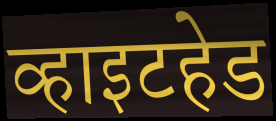
व्हाइटहेड